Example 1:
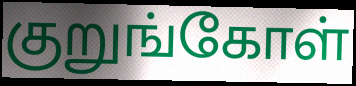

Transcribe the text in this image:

குறுங்கோள்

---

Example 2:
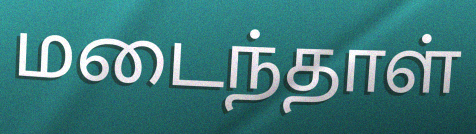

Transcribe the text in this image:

மடைந்தாள்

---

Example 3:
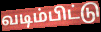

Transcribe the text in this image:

வடிம்பிட்டு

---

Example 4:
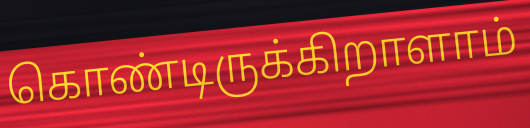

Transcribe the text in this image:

கொண்டிருக்கிறாளாம்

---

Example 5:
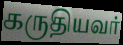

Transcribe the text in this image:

கருதியவர்